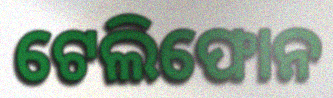
ଟେଲିଫୋନ